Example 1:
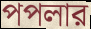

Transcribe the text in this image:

পপলার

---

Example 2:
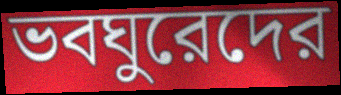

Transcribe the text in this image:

ভবঘুরেদের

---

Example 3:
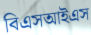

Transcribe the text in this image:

বিএসআইএস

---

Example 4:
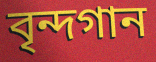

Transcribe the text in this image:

বৃন্দগান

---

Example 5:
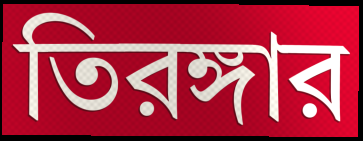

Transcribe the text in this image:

তিরঙ্গার